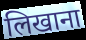
लिखाना